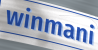
winmani